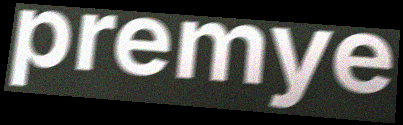
premye